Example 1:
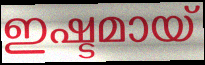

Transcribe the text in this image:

ഇഷ്ടമായ്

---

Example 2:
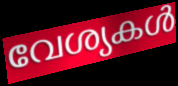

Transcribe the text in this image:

വേശ്യകൾ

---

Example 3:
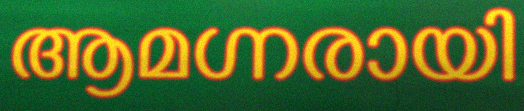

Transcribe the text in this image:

ആമഗ്നരായി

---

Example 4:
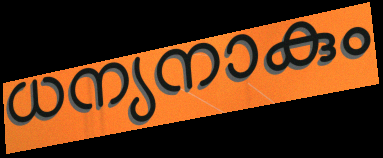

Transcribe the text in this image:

ധന്യനാകും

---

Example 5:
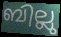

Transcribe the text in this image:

ബില്ലു